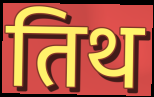
तिथ